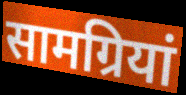
सामग्रियां